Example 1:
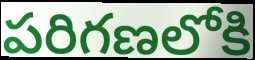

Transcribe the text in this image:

పరిగణలోకి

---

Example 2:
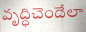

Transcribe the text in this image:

వృద్ధిచెందేలా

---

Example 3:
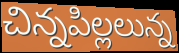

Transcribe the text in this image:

చిన్నపిల్లలున్న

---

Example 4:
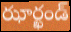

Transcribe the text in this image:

ఝార్ఖండ్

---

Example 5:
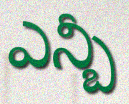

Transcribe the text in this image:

ఎన్బీ